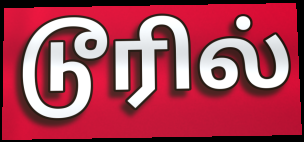
டூரில்